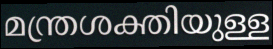
മന്ത്രശക്തിയുള്ള